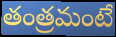
తంత్రమంటే